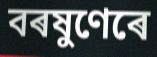
বৰষুণেৰে